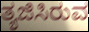
ತ್ಯಜಿಸಿರುವ